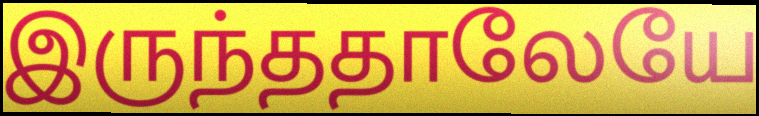
இருந்ததாலேயே